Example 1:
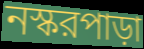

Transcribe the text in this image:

নস্করপাড়া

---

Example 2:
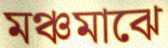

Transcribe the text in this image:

মঞ্চমাঝে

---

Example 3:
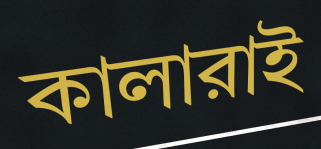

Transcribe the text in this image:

কালারাই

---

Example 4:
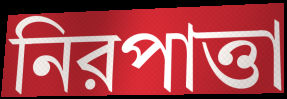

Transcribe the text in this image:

নিরপাত্তা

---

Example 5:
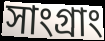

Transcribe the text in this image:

সাংগ্রাং